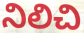
నిలిచి